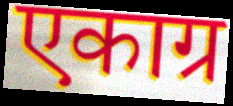
एकाग्र